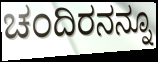
ಚಂದಿರನನ್ನೂ